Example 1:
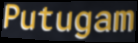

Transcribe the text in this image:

Putugam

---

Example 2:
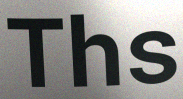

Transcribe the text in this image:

Ths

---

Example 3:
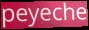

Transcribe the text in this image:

peyeche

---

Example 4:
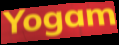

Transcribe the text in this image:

Yogam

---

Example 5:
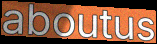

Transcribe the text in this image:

aboutus